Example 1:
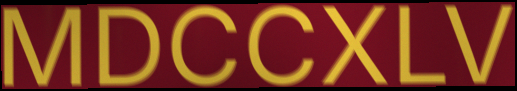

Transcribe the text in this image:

MDCCXLV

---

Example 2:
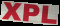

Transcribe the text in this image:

XPL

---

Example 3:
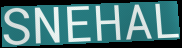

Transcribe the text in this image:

SNEHAL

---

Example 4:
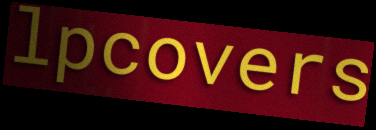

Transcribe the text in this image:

lpcovers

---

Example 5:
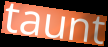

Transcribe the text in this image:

taunt